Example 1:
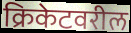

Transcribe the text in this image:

क्रिकेटवरील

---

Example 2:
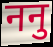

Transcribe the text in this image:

ननु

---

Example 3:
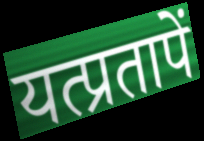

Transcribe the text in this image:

यत्प्रतापें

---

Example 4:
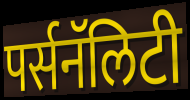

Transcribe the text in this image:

पर्सनॅलिटी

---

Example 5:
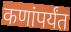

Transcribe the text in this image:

कणांपर्यंत